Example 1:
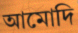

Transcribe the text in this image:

আমোদি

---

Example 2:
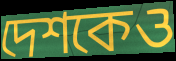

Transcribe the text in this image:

দেশকেও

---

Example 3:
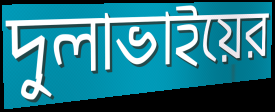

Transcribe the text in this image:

দুলাভাইয়ের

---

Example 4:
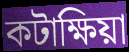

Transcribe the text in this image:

কটাক্ষিয়া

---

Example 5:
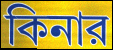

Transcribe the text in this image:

কিনার